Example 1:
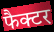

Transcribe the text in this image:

फैक्टर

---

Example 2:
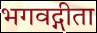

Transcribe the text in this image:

भगवद्गीता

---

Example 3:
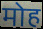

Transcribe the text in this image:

मोह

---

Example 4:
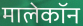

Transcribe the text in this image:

मालेकॉन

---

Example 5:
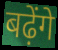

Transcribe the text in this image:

बढ़ेंगे